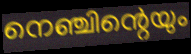
നെഞ്ചിന്റെയും